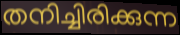
തനിച്ചിരിക്കുന്ന